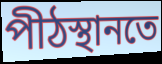
পীঠস্থানতে